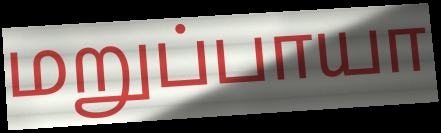
மறுப்பாயா